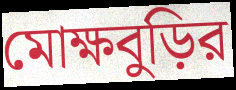
মোক্ষবুড়ির